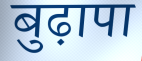
बुढ़ापा